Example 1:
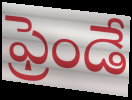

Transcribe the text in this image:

ఫ్రెండే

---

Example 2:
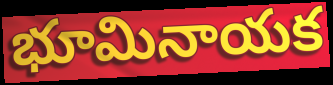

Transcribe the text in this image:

భూమినాయక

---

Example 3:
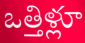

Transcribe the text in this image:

ఒత్తిళ్లూ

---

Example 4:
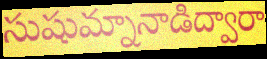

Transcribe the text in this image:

సుషుమ్నానాడిద్వారా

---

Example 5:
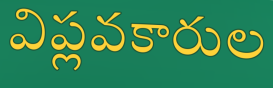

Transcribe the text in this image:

విప్లవకారుల